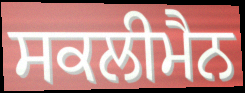
ਸਕਲੀਮੈਨ